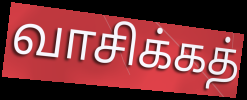
வாசிக்கத்